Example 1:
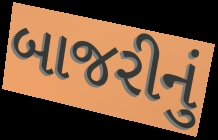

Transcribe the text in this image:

બાજરીનું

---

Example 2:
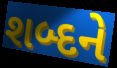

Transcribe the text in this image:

શબ્દને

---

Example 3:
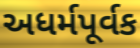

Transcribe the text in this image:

અધર્મપૂર્વક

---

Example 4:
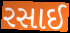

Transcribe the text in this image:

રસાઈ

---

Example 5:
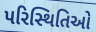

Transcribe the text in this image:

પરિસ્થિતિઓ